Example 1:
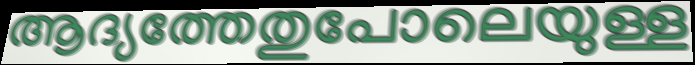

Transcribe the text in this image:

ആദ്യത്തേതുപോലെയുള്ള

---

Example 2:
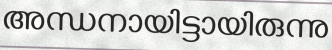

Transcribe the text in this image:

അന്ധനായിട്ടായിരുന്നു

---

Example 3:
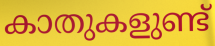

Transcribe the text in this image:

കാതുകളുണ്ട്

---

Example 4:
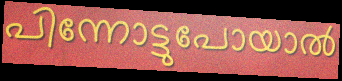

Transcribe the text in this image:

പിന്നോട്ടുപോയാൽ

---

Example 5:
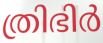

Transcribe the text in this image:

ത്രിഭിർ